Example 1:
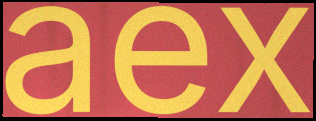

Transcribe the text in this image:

aex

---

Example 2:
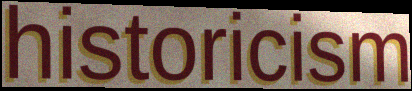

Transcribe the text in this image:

historicism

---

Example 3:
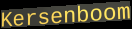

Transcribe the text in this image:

Kersenboom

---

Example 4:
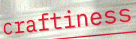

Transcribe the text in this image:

craftiness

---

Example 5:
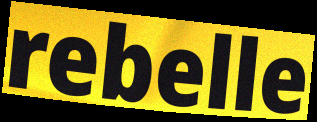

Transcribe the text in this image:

rebelle